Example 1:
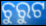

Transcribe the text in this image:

ଚୁରୁଟ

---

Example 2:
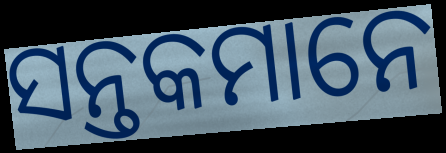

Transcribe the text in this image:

ସନ୍ତକମାନେ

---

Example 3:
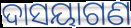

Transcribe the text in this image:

ଦାସୟାଗଣ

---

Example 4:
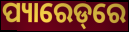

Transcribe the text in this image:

ପ୍ୟାରେଡ୍‌ରେ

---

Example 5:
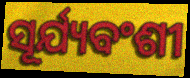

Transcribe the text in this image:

ସୂର୍ଯ୍ୟବଂଶୀ